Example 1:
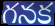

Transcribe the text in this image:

గనక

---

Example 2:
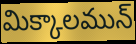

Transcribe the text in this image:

మిక్కాలమున్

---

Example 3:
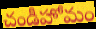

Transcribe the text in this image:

చండీహోమం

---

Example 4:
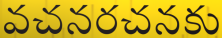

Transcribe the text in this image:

వచనరచనకు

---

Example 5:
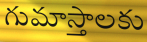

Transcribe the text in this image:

గుమాస్తాలకు